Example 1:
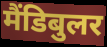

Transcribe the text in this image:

मैंडिबुलर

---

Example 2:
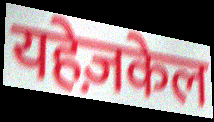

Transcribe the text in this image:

यहेज़केल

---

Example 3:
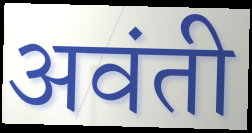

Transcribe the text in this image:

अवंती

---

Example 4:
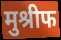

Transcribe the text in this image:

मुश्रीफ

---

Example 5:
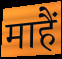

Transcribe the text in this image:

माहैं